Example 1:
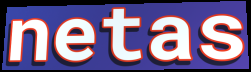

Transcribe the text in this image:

netas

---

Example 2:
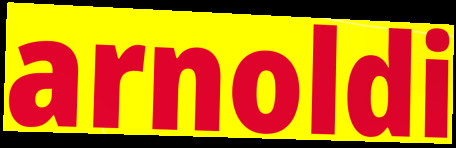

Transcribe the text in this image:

arnoldi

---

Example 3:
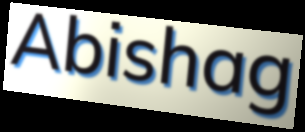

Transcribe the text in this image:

Abishag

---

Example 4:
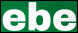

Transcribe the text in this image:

ebe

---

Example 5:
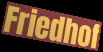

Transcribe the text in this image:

Friedhof